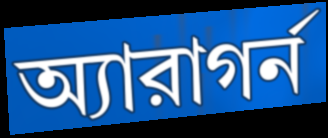
অ্যারাগর্ন